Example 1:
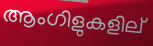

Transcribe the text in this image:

ആംഗിളുകളില്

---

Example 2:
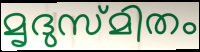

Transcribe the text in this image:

മൃദുസ്മിതം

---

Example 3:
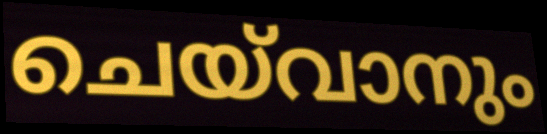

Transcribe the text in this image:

ചെയ്‌വാനും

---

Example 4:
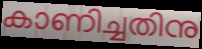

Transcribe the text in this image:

കാണിച്ചതിനു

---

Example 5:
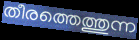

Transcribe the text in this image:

തീരത്തെത്തുന്ന